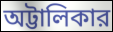
অট্টালিকার